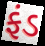
ફંડ